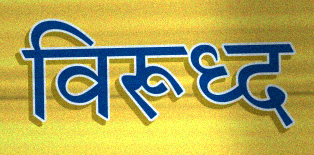
विरूध्द